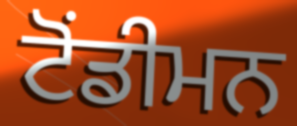
ਟੋਂਡੀਮਨ